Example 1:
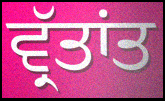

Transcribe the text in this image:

ਵ੍ਰੱਤਾਂਤ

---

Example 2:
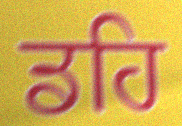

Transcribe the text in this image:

ਡਹਿ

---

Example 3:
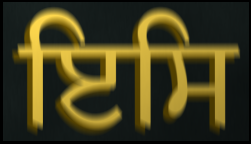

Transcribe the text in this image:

ਇਸਿ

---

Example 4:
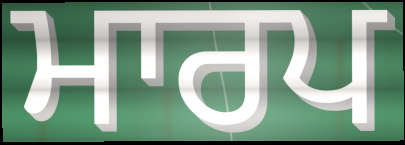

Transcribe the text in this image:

ਮਾਰਪ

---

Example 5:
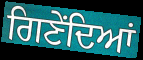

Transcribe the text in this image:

ਗਿਣੇਂਦਿਆਂ